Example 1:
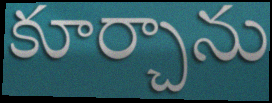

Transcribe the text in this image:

కూర్చాను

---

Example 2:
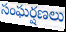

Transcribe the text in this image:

సంఘర్షణలు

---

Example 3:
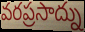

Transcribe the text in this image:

వరప్రసాద్ను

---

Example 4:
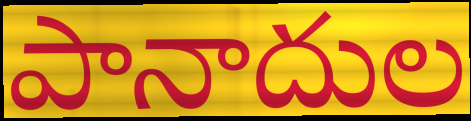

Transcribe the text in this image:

పానాదుల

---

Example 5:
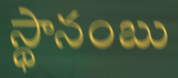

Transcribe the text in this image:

స్థానంబు